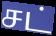
சட்